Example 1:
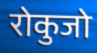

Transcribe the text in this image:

रोकुजो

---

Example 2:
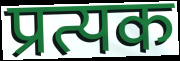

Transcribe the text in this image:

प्रत्यक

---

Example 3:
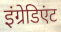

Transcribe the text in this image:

इंग्रेडिएंट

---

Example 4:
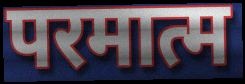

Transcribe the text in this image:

परमात्म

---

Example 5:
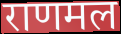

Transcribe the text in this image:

राणमल